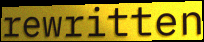
rewritten